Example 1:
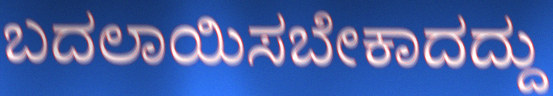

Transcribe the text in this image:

ಬದಲಾಯಿಸಬೇಕಾದದ್ದು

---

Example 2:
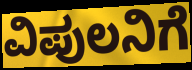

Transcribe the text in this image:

ವಿಪುಲನಿಗೆ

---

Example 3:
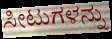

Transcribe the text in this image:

ಸೀಟುಗಳನ್ನು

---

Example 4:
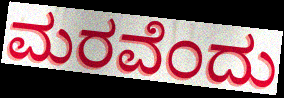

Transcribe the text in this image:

ಮರವೆಂದು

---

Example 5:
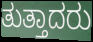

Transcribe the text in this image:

ತುತ್ತಾದರು